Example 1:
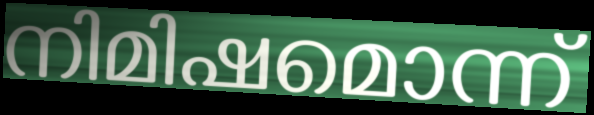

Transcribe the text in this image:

നിമിഷമൊന്ന്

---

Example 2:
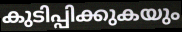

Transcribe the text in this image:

കുടിപ്പിക്കുകയും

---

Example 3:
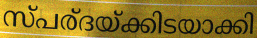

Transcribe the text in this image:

സ്പര്ദയ്ക്കിടയാക്കി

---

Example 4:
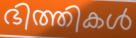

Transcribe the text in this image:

ഭിത്തികൾ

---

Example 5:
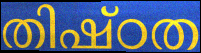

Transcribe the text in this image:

തിഷ്ഠത